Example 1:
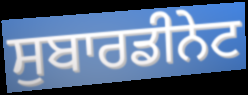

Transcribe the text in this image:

ਸੁਬਾਰਡੀਨੇਟ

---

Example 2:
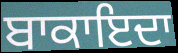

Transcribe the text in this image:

ਬਾਕਾਇਦਾ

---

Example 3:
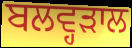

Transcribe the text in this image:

ਬਲਵ੍ਹੜਾਲ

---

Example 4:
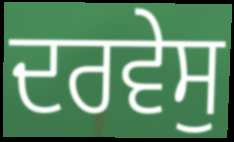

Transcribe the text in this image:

ਦਰਵੇਸੁ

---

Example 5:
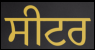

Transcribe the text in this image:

ਸੀਟਰ